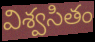
విశ్వసితం